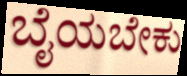
ಬೈಯಬೇಕು